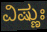
ವಿಷ್ಣುಃ